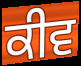
ਕੀਵ